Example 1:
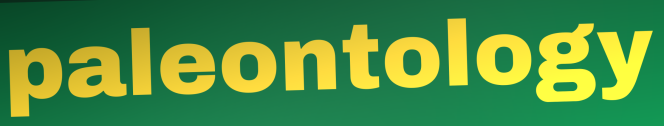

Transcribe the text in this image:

paleontology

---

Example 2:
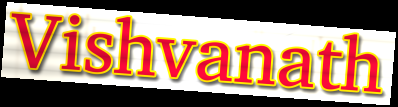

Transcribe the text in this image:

Vishvanath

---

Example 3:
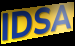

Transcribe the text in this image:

IDSA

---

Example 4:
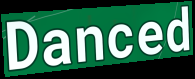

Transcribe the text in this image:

Danced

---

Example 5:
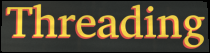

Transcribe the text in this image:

Threading